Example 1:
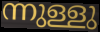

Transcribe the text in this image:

ന്നുള്ളു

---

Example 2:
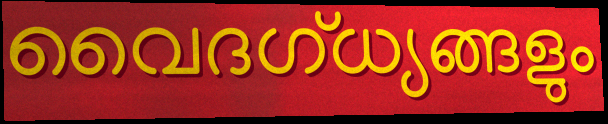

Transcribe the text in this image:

വൈദഗ്ധ്യങ്ങളും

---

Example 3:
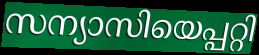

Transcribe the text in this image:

സന്യാസിയെപ്പറ്റി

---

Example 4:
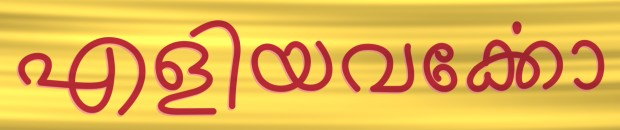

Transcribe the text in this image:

എളിയവൎക്കോ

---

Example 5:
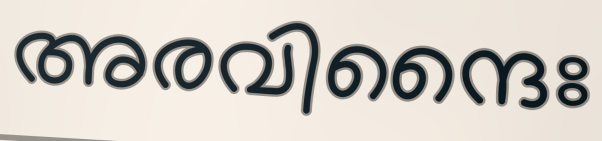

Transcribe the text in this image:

അരവിന്ദൈഃ